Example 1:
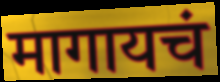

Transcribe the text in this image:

मागायचं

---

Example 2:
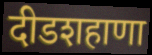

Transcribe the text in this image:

दीडशहाणा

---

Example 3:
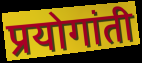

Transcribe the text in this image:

प्रयोगांती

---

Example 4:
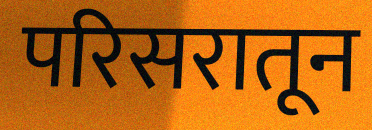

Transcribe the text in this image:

परिसरातून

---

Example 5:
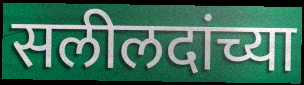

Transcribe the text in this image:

सलीलदांच्या